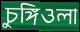
চুঙ্গিওলা